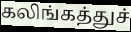
கலிங்கத்துச்